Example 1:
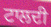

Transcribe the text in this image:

ਟਾਲਦੀ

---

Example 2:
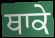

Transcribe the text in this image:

ਥਾਕੇ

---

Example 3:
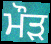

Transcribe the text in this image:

ਮੌਡ਼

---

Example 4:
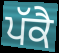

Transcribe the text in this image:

ਪੱਕੈ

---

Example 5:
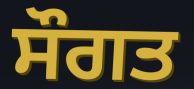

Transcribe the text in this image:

ਸੌਗਤ